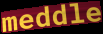
meddle